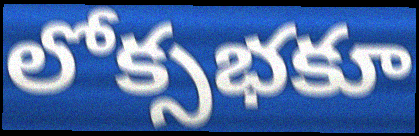
లోక్సభకూ